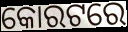
କୋରଟରେ